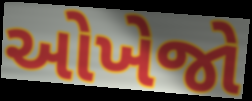
ઓખેજો